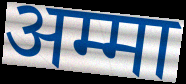
अम्मा